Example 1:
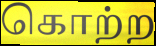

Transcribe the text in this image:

கொற்ற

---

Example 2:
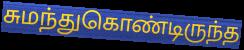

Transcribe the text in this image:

சுமந்துகொண்டிருந்த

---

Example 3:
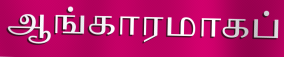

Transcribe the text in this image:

ஆங்காரமாகப்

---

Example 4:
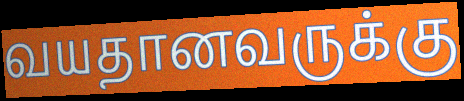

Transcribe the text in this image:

வயதானவருக்கு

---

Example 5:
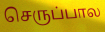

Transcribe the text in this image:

செருப்பால